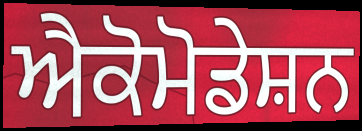
ਐਕੋਮੋਡੇਸ਼ਨ